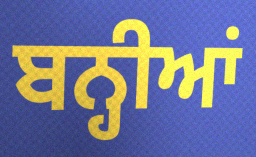
ਬਨ੍ਹੀਆਂ